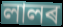
লালৰ